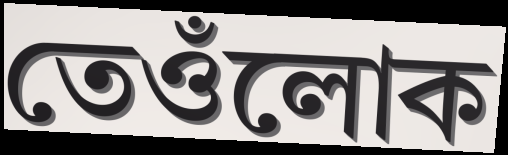
তেওঁলোক